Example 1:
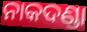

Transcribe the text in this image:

ନାକଦଣ୍ଡା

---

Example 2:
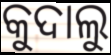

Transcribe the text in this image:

କୁଦାଲୁ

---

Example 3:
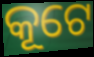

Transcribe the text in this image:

କୂଟେ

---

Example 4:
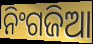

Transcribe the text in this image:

ନିଂଗଜିଆ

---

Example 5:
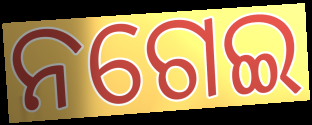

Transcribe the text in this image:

ନଗେଇ